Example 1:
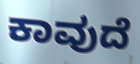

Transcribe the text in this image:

ಕಾವುದೆ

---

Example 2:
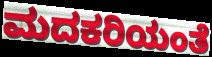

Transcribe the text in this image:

ಮದಕರಿಯಂತೆ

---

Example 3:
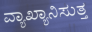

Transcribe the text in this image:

ವ್ಯಾಖ್ಯಾನಿಸುತ್ತ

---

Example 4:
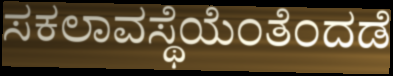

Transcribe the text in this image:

ಸಕಲಾವಸ್ಥೆಯೆಂತೆಂದಡೆ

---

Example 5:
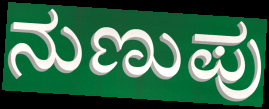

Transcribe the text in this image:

ನುಣುಪು